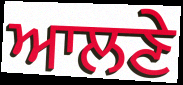
ਆਲਣੇ